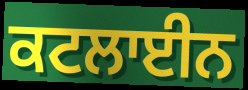
ਕਟਲਾਈਨ